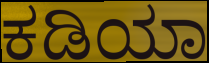
ಕಡಿಯಾ